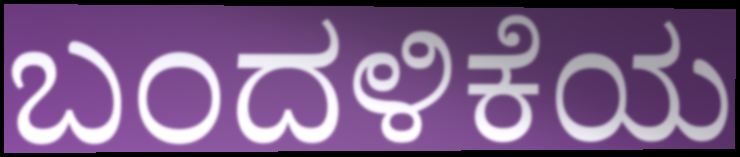
ಬಂದಳಿಕೆಯ